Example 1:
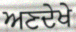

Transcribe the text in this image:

ਅਣਦੇਖੇ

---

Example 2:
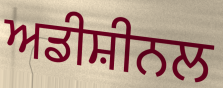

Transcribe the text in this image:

ਅਡੀਸ਼ੀਨਲ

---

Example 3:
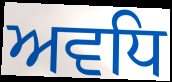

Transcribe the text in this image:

ਅਵਧਿ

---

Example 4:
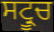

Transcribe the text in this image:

ਸਟ੍ਰੂਚ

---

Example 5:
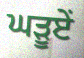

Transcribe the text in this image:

ਘੜੂਏਂ